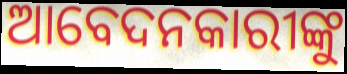
ଆବେଦନକାରୀଙ୍କୁ